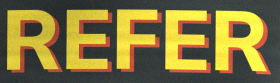
REFER